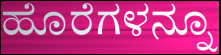
ಹೊರೆಗಳನ್ನೂ